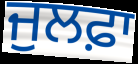
ਜੁਲਫ਼ਾ